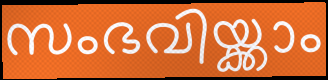
സംഭവിയ്ക്കാം